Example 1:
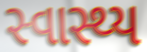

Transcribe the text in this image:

સ્વાસ્થ્ય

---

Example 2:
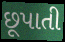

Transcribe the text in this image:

છૂપાતી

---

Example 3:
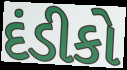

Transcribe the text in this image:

દંડીકો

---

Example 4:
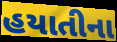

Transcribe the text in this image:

હયાતીના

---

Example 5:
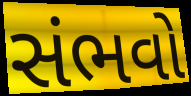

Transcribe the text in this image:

સંભવો